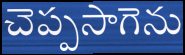
చెప్పసాగెను